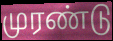
முரண்டு